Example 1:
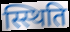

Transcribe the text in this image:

स्स्थिति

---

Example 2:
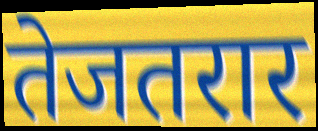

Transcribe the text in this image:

तेजतरार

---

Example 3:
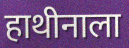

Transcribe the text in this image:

हाथीनाला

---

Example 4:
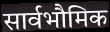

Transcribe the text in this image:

सार्वभौमिक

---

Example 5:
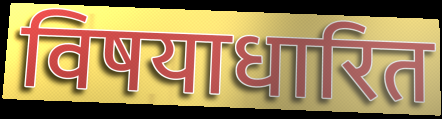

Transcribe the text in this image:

विषयाधारित